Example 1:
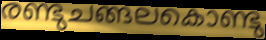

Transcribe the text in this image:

രണ്ടുചങ്ങലകൊണ്ടു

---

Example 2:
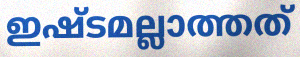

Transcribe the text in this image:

ഇഷ്ടമല്ലാത്തത്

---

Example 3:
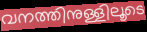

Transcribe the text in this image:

വനത്തിനുള്ളിലൂടെ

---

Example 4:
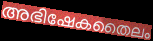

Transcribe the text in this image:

അഭിഷേകതൈലം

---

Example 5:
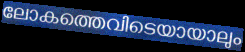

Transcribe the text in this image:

ലോകത്തെവിടെയായാലും